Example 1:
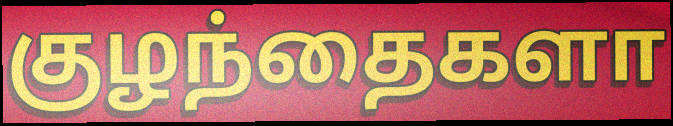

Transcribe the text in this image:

குழந்தைகளா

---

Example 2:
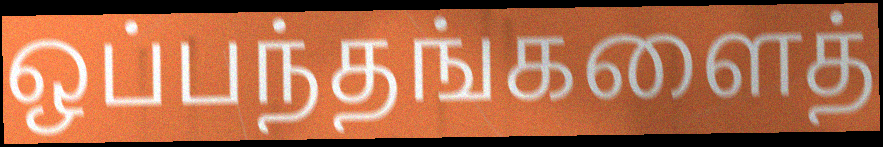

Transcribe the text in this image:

ஒப்பந்தங்களைத்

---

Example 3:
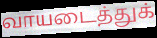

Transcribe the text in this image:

வாயடைத்துக்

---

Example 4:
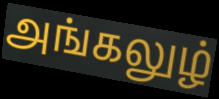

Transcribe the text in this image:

அங்கலுழ்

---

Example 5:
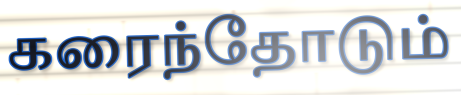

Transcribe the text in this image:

கரைந்தோடும்